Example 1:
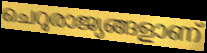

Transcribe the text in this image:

ചെറുരാജ്യങ്ങളാണ്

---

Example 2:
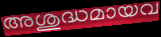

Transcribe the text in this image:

അശുദ്ധമായവ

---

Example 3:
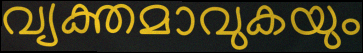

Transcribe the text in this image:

വ്യക്തമാവുകയും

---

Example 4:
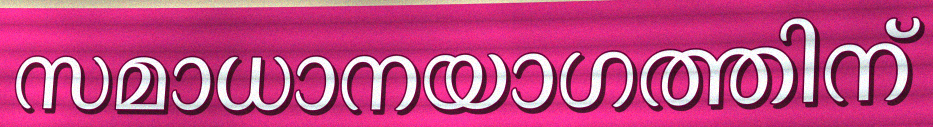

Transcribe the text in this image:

സമാധാനയാഗത്തിന്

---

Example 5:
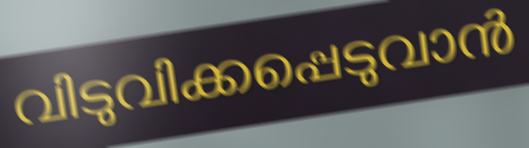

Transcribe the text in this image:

വിടുവിക്കപ്പെടുവാൻ